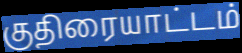
குதிரையாட்டம்